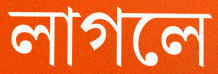
লাগলে